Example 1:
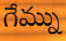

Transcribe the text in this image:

గేమ్ను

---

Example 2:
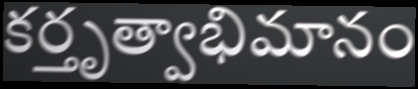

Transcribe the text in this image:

కర్తృత్వాభిమానం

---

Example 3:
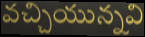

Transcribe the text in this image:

వచ్చియున్నవి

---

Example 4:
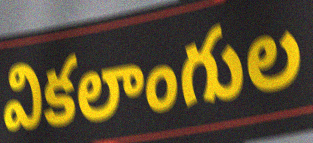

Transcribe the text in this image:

వికలాంగుల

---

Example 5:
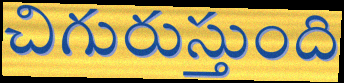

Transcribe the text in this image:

చిగురుస్తుంది